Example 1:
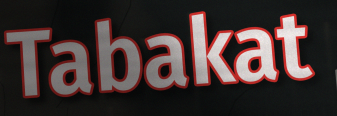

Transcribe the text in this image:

Tabakat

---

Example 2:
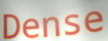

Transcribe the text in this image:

Dense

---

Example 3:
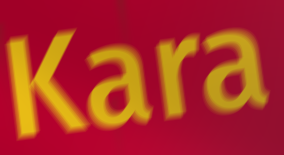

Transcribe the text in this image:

Kara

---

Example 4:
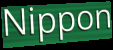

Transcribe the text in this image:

Nippon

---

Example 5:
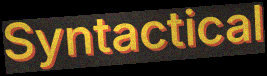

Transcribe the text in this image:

Syntactical